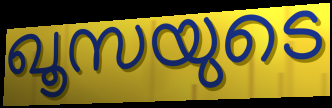
ഖൂസയുടെ